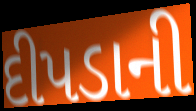
દીપડાની